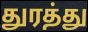
துரத்து